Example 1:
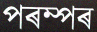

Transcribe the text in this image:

পৰম্পৰ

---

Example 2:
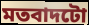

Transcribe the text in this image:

মতবাদটো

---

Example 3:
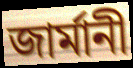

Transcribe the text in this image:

জাৰ্মানী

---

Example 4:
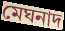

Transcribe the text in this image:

মেঘনাদ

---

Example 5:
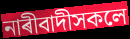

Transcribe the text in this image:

নাৰীবাদীসকলে